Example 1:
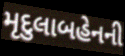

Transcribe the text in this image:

મૃદુલાબહેનની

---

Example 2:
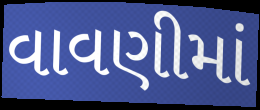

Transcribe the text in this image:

વાવણીમાં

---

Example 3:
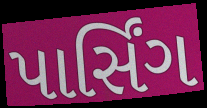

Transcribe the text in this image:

પાર્સિંગ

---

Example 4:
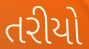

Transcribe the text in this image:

તરીયો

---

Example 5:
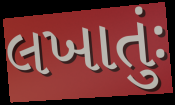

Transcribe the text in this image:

લખાતુંઃ